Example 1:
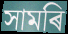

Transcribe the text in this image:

সামৰি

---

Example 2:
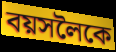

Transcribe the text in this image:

বয়সলৈকে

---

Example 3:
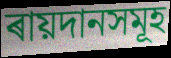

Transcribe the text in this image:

ৰায়দানসমূহ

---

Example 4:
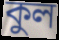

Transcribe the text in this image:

কুল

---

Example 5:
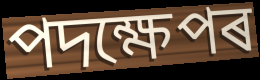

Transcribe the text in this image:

পদক্ষেপৰ